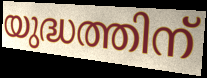
യുദ്ധത്തിന്